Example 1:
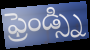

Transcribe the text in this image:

ఫ్రెండ్స్ని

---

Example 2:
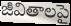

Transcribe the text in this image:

జీవితాలపై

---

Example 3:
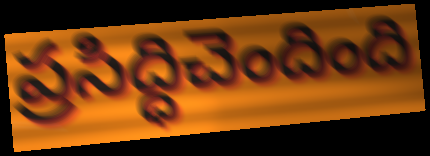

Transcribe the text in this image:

ప్రసిద్ధిచెందింది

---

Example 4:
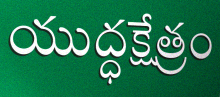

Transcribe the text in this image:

యుద్ధక్షేత్రం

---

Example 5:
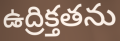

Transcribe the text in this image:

ఉద్రిక్తతను